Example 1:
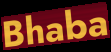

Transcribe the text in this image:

Bhaba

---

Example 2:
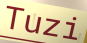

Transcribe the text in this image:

Tuzi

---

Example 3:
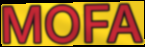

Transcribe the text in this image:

MOFA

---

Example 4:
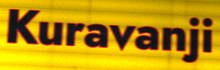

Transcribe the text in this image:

Kuravanji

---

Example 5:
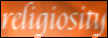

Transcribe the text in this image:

religiosity